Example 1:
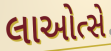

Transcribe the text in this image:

લાઓત્સે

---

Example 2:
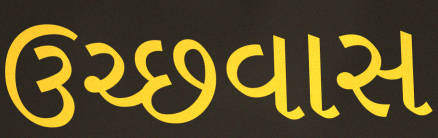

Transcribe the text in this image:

ઉચ્છવાસ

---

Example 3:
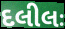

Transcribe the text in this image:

દલીલઃ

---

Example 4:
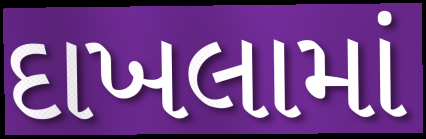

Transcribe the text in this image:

દાખલામાં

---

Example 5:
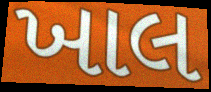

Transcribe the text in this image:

ખાલ